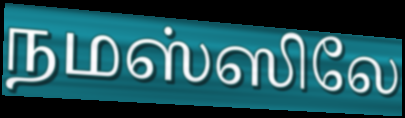
நமஸ்ஸிலே